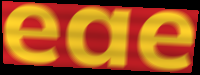
eae